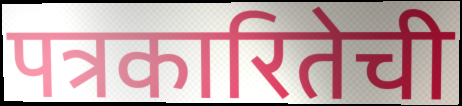
पत्रकारितेची